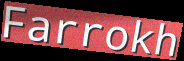
Farrokh